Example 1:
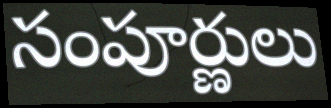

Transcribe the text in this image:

సంపూర్ణులు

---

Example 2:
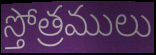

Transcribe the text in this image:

స్తోత్రములు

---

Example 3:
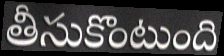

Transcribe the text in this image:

తీసుకొంటుంది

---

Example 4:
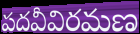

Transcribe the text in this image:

పదవీవిరమణ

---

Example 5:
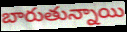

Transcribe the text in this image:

బారుతున్నాయి